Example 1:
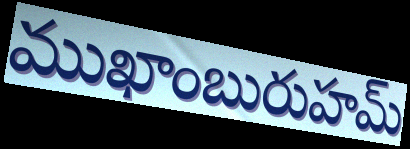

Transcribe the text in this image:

ముఖాంబురుహమ్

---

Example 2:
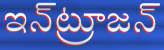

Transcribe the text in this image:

ఇన్‌ట్రూజన్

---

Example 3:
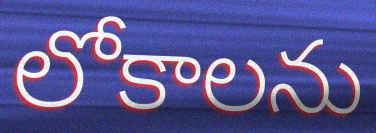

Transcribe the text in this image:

లోకాలను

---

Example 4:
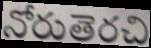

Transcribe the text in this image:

నోరుతెరచి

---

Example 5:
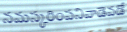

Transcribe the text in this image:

నమస్కరింపనివాడెవడో